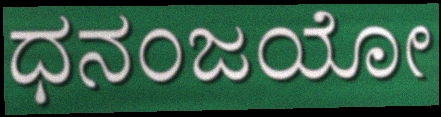
ಧನಂಜಯೋ